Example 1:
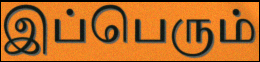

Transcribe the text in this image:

இப்பெரும்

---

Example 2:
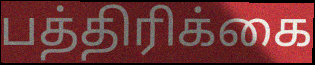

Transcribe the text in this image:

பத்திரிக்கை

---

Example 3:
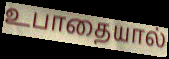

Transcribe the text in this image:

உபாதையால்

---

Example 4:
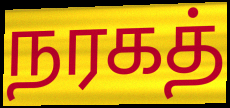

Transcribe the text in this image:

நரகத்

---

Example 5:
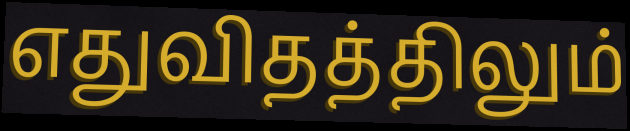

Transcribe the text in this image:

எதுவிதத்திலும்